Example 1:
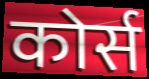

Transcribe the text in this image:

कोर्स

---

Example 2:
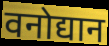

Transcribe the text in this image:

वनोद्यान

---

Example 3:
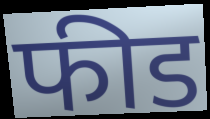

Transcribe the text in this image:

फीड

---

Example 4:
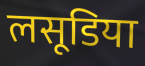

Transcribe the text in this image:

लसूडिया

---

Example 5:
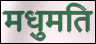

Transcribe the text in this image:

मधुमति